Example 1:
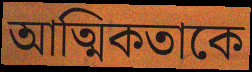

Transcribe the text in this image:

আত্মিকতাকে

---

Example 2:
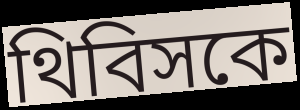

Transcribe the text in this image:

থিবিসকে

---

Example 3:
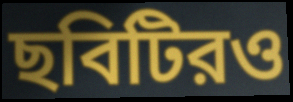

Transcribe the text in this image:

ছবিটিরও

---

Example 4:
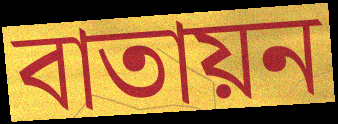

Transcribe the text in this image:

বাতায়ন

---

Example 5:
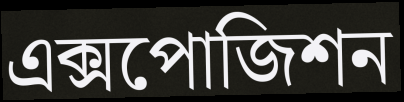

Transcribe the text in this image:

এক্সপোজিশন